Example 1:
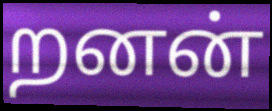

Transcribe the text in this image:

றனன்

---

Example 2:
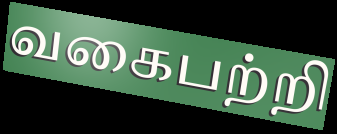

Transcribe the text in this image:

வகைபற்றி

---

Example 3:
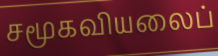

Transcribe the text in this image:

சமூகவியலைப்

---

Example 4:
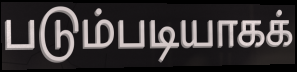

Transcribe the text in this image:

படும்படியாகக்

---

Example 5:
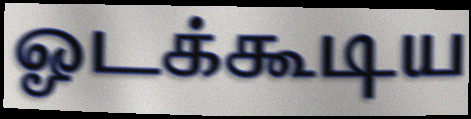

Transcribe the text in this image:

ஓடக்கூடிய